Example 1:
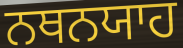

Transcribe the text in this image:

ਨਥਨਯਾਹ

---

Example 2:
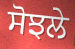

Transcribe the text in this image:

ਸੋਝਲੇ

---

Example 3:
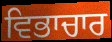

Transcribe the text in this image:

ਵਿਭਾਚਾਰ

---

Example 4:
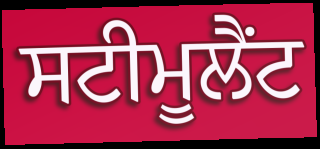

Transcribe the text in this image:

ਸਟੀਮੂਲੈਂਟ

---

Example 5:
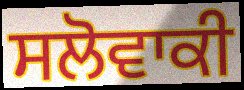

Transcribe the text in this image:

ਸਲੋਵਾਕੀ